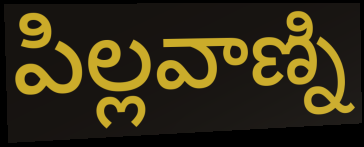
పిల్లవాణ్ని